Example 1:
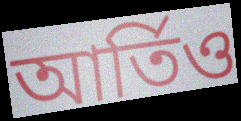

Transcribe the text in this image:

আর্তিও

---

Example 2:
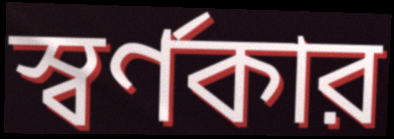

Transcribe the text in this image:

স্বর্ণকার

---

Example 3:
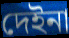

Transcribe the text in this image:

দেইনা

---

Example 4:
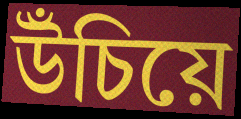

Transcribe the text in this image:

উঁচিয়ে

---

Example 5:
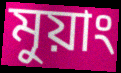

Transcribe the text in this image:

মুয়াং